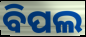
ବିପଲ